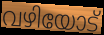
വഴിയോട്